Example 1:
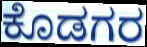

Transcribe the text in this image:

ಕೊಡಗರ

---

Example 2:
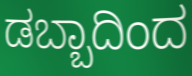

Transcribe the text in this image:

ಡಬ್ಬಾದಿಂದ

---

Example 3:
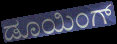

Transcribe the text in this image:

ಡೂಯಿಂಗ್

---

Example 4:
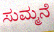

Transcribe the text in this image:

ಸುಮ್ಮನೆ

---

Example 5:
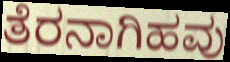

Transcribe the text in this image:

ತೆರನಾಗಿಹವು